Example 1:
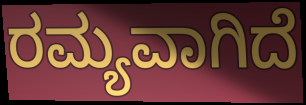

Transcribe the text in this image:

ರಮ್ಯವಾಗಿದೆ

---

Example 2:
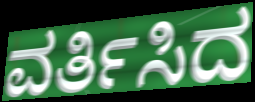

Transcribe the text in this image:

ವರ್ತಿಸಿದ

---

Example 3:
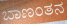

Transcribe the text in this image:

ಬಾಣಂತನ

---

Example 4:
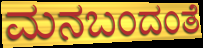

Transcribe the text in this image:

ಮನಬಂದಂತೆ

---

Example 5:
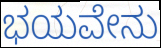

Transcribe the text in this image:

ಭಯವೇನು